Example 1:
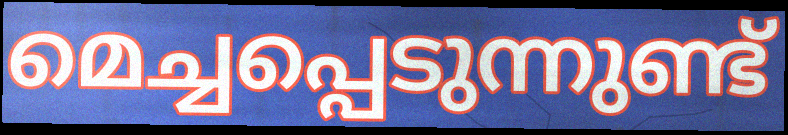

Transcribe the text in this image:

മെച്ചപ്പെടുന്നുണ്ട്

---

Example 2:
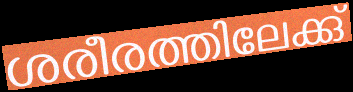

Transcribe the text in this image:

ശരീരത്തിലേക്കു്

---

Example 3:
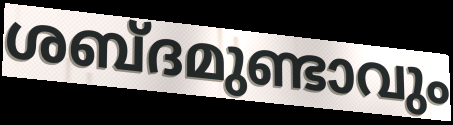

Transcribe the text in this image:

ശബ്ദമുണ്ടാവും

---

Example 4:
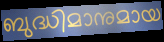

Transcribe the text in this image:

ബുദ്ധിമാനുമായ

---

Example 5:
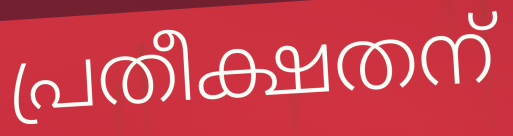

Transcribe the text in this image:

പ്രതീക്ഷതന്